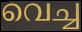
വെച്ച